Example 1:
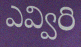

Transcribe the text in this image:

ఎవ్విరి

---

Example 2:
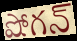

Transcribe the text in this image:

షోగన్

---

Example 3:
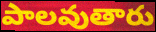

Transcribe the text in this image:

పాలవుతారు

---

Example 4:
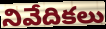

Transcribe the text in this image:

నివేదికలు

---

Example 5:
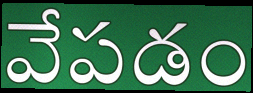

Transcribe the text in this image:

వేపడం